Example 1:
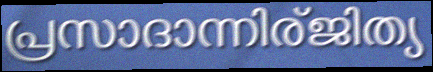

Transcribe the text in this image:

പ്രസാദാന്നിര്ജിത്യ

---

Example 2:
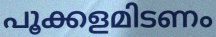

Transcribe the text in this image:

പൂക്കളമിടണം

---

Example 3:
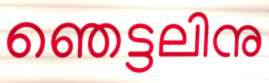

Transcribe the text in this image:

ഞെട്ടലിനു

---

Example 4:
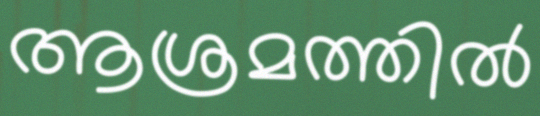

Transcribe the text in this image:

ആശ്രമത്തിൽ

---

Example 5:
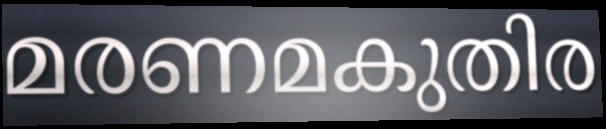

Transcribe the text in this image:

മരണമകുതിര